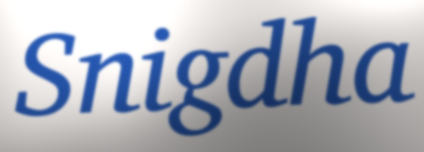
Snigdha